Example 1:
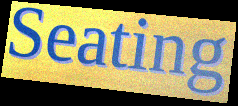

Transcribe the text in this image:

Seating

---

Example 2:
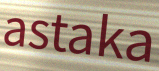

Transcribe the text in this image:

astaka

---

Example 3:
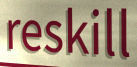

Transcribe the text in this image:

reskill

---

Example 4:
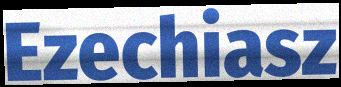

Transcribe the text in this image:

Ezechiasz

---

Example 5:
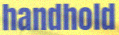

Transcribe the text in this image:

handhold